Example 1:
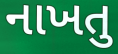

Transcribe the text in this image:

નાખતુ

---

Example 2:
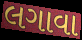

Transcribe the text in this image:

લગાવા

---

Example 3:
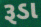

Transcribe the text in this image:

રૂડા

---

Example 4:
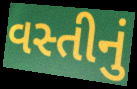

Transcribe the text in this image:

વસ્તીનું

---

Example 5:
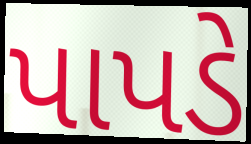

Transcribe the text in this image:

પાપડે